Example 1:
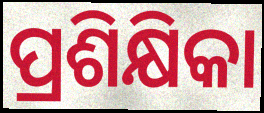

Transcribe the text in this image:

ପ୍ରଶିକ୍ଷିକା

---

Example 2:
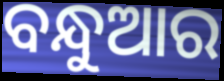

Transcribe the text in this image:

ବନ୍ଧୁଆର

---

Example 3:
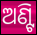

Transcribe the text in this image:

ଅଣ୍ଟି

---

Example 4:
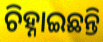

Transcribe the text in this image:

ଚିହ୍ନାଇଛନ୍ତି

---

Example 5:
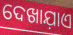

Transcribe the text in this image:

ଦେଖାଯ଼ାଏ